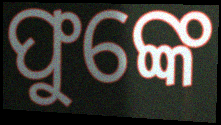
ଫୁଙ୍କେ